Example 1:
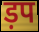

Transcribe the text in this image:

ड़प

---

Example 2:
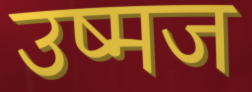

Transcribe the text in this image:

उष्मज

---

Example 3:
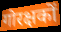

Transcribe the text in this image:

गोरक्षकों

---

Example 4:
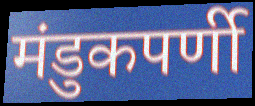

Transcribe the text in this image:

मंडुकपर्णी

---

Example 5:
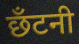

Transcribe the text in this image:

छँटनी